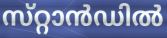
സ്‌റ്റാൻഡിൽ